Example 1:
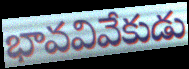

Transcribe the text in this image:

భావవివేకుడు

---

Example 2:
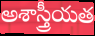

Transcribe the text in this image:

అశాస్త్రీయత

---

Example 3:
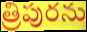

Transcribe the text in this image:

త్రిపురను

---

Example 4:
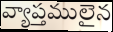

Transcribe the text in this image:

వ్యాప్తములైన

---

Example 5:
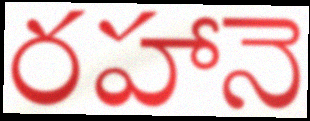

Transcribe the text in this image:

రహానె